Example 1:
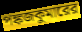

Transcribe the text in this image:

পঙ্কজকুমারের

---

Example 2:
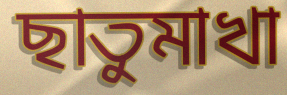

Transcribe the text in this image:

ছাতুমাখা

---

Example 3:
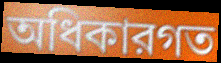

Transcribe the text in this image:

অধিকারগত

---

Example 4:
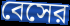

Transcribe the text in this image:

বেসের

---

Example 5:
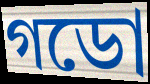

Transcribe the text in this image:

গডো